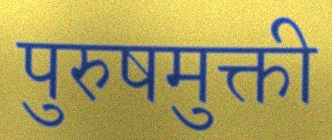
पुरुषमुक्ती